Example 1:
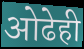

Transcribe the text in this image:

ओढेही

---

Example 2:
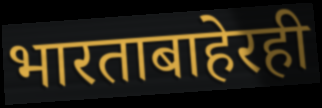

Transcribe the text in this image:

भारताबाहेरही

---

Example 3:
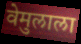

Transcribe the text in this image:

वेमुलाला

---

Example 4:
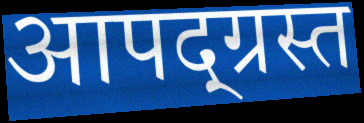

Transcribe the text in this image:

आपद्ग्रस्त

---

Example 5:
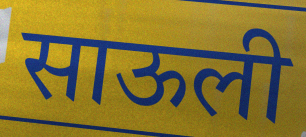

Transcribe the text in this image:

साऊली